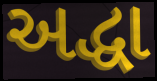
અદ્ધા